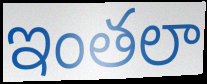
ఇంతలా